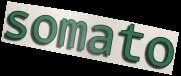
somato